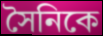
সৈনিকে